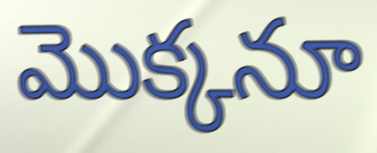
మొక్కనూ